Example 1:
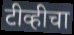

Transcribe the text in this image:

टीव्हीचा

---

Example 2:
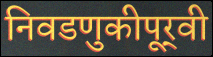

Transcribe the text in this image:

निवडणुकीपूर्वी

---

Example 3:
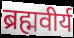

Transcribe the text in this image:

ब्रह्मवीर्य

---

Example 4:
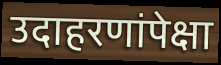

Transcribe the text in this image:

उदाहरणांपेक्षा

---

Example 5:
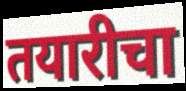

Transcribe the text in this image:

तयारीचा